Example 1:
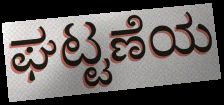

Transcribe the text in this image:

ಘಟ್ಟಣೆಯ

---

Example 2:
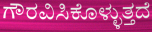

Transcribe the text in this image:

ಗೌರವಿಸಿಕೊಳ್ಳುತ್ತದೆ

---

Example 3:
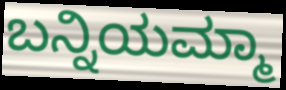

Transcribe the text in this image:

ಬನ್ನಿಯಮ್ಮಾ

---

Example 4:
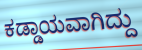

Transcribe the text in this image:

ಕಡ್ಡಾಯವಾಗಿದ್ದು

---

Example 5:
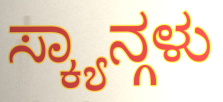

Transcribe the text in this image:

ಸ್ಕ್ಯಾನ್ಗಳು